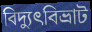
বিদ্যুৎবিভ্রাট